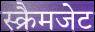
स्‍क्रैमजेट